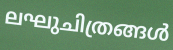
ലഘുചിത്രങ്ങൾ